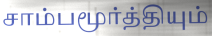
சாம்பமூர்த்தியும்